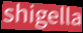
shigella